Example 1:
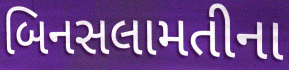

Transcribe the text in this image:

બિનસલામતીના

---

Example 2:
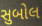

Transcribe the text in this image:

સુબોલ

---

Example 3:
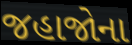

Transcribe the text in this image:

જહાજોના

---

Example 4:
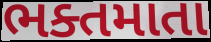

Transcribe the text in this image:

ભક્તમાતા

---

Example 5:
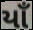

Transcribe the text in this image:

યાઁ